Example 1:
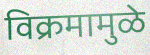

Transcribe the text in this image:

विक्रमामुळे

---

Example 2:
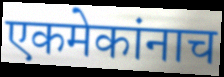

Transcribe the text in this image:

एकमेकांनाच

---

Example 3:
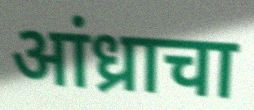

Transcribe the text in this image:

आंध्राचा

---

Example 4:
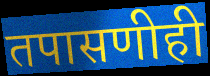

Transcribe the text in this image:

तपासणीही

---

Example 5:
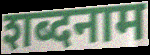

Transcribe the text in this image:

शब्दनाम